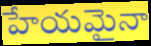
హేయమైనా